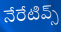
నేరేటివ్స్